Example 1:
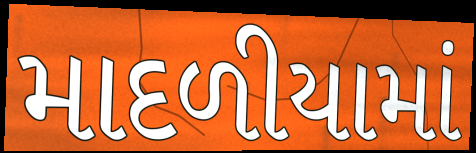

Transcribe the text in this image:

માદળીયામાં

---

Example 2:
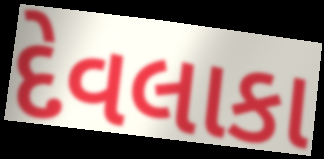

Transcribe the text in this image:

દેવલાકા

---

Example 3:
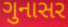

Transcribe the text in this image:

ગુનાસર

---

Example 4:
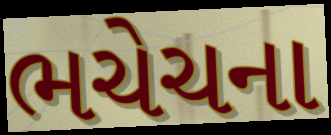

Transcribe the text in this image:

ભચેચના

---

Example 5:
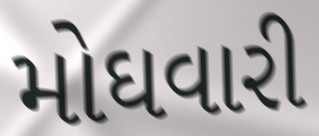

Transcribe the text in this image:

મોઘવારી